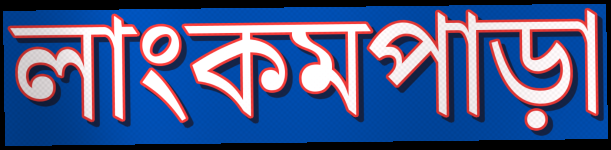
লাংকমপাড়া